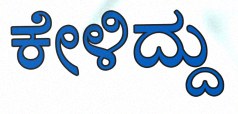
ಕೇಳಿದ್ದು